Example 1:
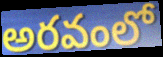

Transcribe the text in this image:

అరవంలో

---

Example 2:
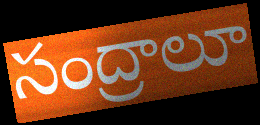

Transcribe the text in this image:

సంద్రాలూ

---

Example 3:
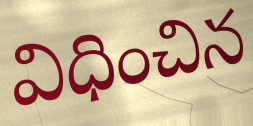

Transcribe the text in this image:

విధించిన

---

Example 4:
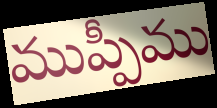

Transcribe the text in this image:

ముప్పీము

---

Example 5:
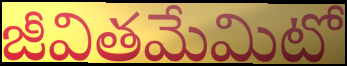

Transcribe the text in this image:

జీవితమేమిటో